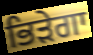
ਭਿੜੇਗਾ